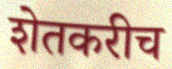
शेतकरीच